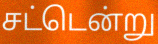
சட்டென்று